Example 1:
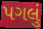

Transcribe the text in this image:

પગલું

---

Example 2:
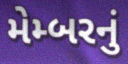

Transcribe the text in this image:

મેમ્બરનું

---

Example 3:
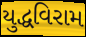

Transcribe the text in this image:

યુદ્ધવિરામ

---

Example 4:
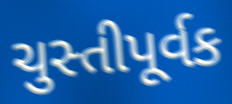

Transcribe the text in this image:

ચુસ્તીપૂર્વક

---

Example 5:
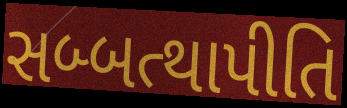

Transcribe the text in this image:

સબ્બત્થાપીતિ